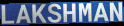
LAKSHMAN